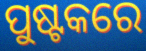
ପୁଷ୍ଟକରେ